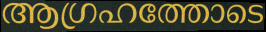
ആഗ്രഹത്തോടെ